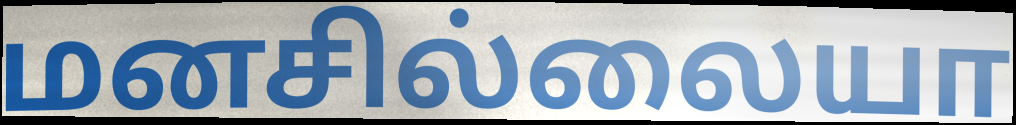
மனசில்லையா